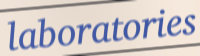
laboratories